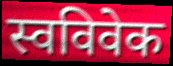
स्वविवेक